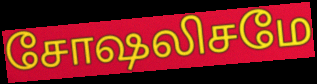
சோஷலிசமே